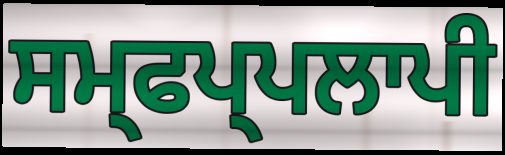
ਸਮ੍ਫਪ੍ਪਲਾਪੀ